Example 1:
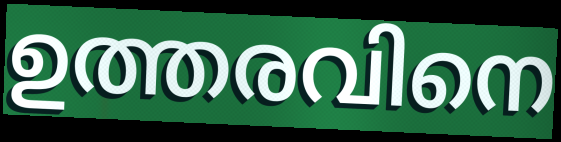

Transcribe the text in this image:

ഉത്തരവിനെ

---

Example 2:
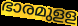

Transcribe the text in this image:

ഭാരമുളള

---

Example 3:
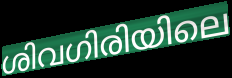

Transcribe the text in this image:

ശിവഗിരിയിലെ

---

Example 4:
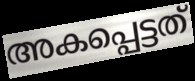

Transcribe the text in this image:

അകപ്പെട്ടത്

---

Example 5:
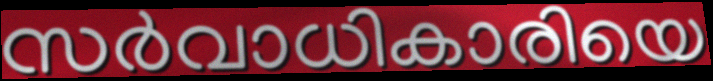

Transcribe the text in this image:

സർവാധികാരിയെ